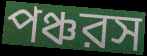
পঞ্চরস